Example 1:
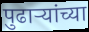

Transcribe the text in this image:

पुढाऱ्यांच्या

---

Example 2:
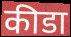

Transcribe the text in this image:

कीडा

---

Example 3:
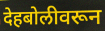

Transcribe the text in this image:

देहबोलीवरून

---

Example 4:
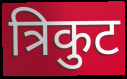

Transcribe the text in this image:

त्रिकुट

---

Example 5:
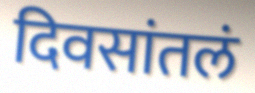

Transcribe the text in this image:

दिवसांतलं